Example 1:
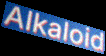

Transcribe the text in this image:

Alkaloid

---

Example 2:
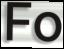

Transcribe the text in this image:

Fo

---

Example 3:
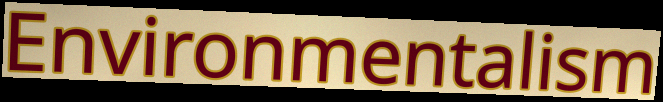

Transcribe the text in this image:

Environmentalism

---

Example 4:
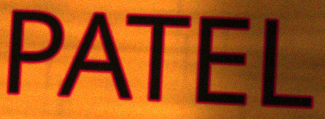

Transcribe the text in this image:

PATEL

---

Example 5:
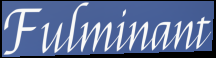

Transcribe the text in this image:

Fulminant